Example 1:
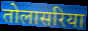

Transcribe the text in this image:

तोलासरिया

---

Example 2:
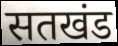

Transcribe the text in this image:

सतखंड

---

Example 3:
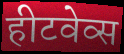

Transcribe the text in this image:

हीटवेव्स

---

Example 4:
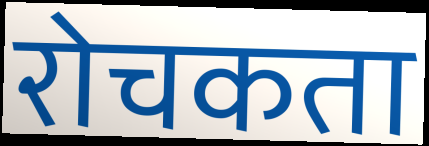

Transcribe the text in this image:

रोचकता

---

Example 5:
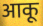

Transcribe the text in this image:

आकू